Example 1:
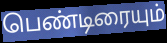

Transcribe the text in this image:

பெண்டிரையும்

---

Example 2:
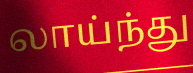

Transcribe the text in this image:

லாய்ந்து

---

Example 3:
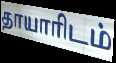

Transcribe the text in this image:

தாயாரிடம்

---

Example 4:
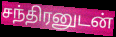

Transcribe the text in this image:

சந்திரனுடன்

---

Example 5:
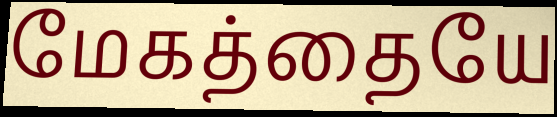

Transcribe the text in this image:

மேகத்தையே